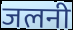
जलनी